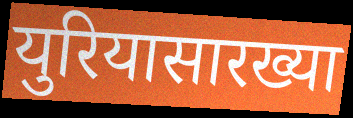
युरियासारख्या